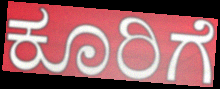
ಕೂರಿಗೆ